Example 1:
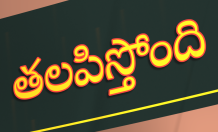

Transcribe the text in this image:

తలపిస్తోంది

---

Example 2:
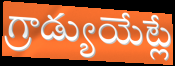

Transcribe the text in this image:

గ్రాడ్యుయేట్లే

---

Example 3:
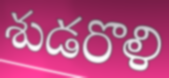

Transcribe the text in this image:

శుడరొళి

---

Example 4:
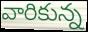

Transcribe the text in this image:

వారికున్న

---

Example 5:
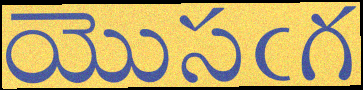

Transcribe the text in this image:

యొసఁగ